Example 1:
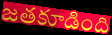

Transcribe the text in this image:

జతకూడింది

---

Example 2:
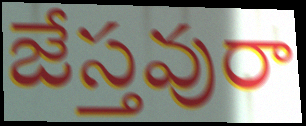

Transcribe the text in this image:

జేస్తవురా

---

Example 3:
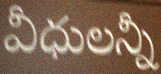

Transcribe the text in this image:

వీధులన్నీ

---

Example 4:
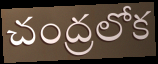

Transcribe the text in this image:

చంద్రలోక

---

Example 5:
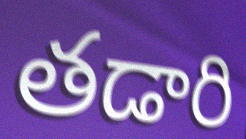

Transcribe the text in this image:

తడారి